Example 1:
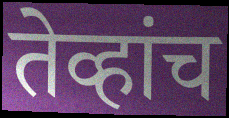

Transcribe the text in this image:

तेव्हांच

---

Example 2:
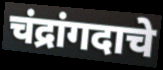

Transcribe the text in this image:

चंद्रांगदाचे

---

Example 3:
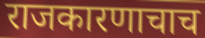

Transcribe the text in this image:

राजकारणाचाच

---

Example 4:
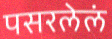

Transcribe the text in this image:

पसरलेलं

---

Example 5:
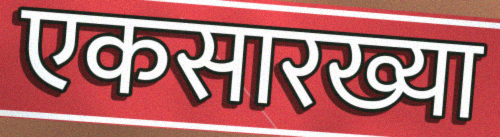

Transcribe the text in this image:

एकसारख्या